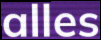
alles